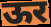
ऊर